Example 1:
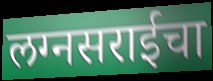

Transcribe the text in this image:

लग्नसराईचा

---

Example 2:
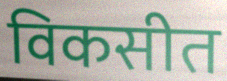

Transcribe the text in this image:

विकसीत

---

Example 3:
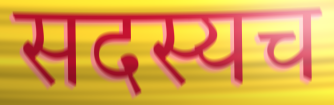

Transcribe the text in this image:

सदस्यच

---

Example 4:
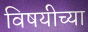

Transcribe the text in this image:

विषयीच्या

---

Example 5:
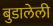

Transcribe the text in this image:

बुडालेली